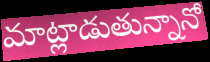
మాట్లాడుతున్నానో